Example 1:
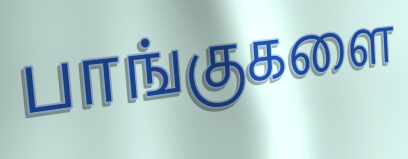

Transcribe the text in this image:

பாங்குகளை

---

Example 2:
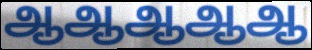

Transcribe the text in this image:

ஆஆஆஆஆ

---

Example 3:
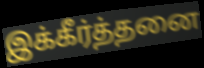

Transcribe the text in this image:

இக்கீர்த்தனை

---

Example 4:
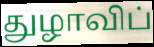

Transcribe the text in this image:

துழாவிப்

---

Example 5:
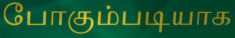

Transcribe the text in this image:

போகும்படியாக